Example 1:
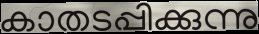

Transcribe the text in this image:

കാതടപ്പിക്കുന്നു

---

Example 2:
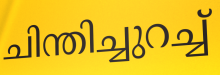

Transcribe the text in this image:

ചിന്തിച്ചുറച്ച്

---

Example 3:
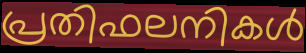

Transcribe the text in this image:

പ്രതിഫലനികൾ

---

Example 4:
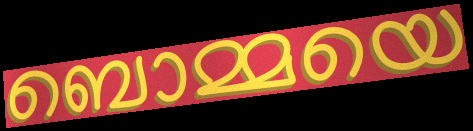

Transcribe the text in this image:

ബൊമ്മയെ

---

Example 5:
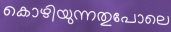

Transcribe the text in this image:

കൊഴിയുന്നതുപോലെ